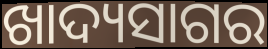
ଖାଦ୍ୟସାଗର